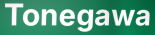
Tonegawa